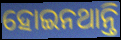
ହୋଇନଥାନ୍ତି